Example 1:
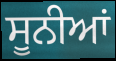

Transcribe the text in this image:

ਸੂਨੀਆਂ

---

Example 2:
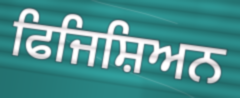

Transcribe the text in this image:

ਫਿਜਿਸ਼ਿਅਨ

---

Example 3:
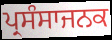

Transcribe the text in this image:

ਪ੍ਰਸੰਸਾਜਨਕ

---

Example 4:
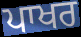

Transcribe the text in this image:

ਪਾਖਰ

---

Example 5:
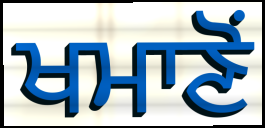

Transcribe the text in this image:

ਖਮਾਣੋਂ